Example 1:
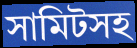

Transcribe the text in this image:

সামিটসহ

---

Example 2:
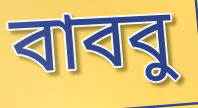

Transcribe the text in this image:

বাববু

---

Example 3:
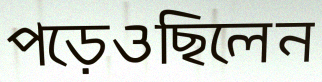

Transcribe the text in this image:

পড়েওছিলেন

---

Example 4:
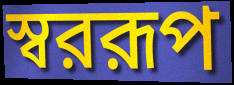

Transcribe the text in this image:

স্বররূপ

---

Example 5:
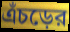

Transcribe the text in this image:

এঁচড়ের